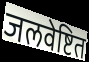
जलवेष्टित